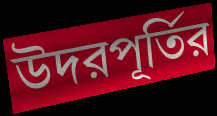
উদরপূর্তির